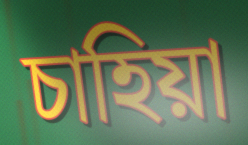
চাহিয়া